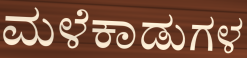
ಮಳೆಕಾಡುಗಳ